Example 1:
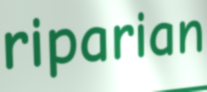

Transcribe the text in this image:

riparian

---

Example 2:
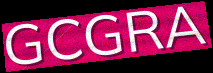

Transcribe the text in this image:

GCGRA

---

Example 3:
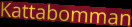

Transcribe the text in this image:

Kattabomman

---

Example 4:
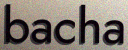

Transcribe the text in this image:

bacha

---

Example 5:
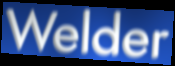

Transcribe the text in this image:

Welder